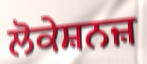
ਲੋਕੇਸ਼ਨਜ਼